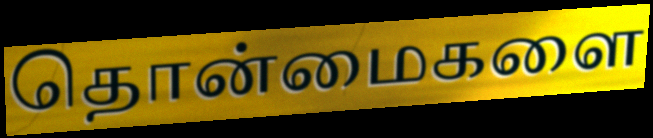
தொன்மைகளை